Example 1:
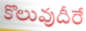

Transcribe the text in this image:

కొలువుదీరే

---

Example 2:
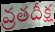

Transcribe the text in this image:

వ్రతదీక్ష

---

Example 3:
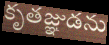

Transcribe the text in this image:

కృతజ్ఞుడను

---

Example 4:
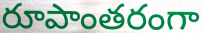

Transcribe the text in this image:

రూపాంతరంగా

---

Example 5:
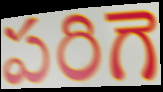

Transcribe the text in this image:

పరిగె